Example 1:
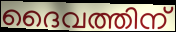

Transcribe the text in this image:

ദൈവത്തിന്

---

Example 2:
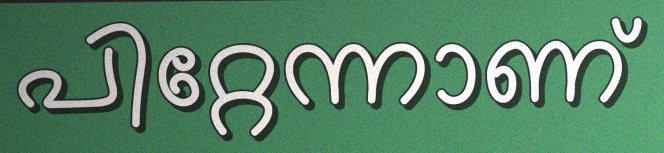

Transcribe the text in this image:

പിറ്റേന്നാണ്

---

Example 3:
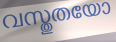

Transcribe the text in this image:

വസ്തുതയോ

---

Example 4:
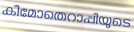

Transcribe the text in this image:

കീമോതെറാപ്പിയുടെ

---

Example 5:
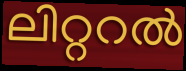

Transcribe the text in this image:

ലിറ്ററൽ